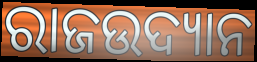
ରାଜଉଦ୍ୟାନ